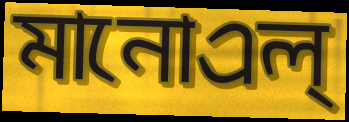
মানোএল্